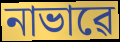
নাভাৱে